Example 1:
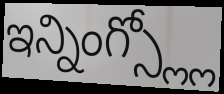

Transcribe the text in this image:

ఇన్నింగ్స్ల్లో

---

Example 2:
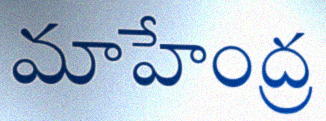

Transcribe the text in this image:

మాహేంద్ర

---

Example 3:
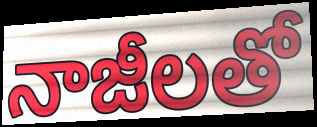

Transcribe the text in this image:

నాజీలతో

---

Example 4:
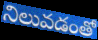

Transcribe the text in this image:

నిలువడంతో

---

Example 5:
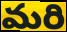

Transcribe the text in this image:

మరి